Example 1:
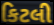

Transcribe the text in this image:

કિટલી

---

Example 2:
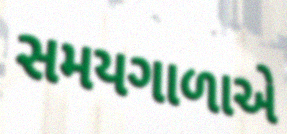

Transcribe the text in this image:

સમયગાળાએ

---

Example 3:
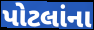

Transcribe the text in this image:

પોટલાંના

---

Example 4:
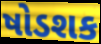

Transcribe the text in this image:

ષોડશક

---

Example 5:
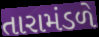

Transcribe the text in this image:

તારામંડળે